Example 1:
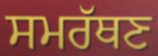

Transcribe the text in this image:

ਸਮਰੱਥਣ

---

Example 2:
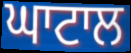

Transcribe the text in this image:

ਘਾਟਾਲ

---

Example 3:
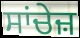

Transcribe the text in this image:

ਸਾਂਚੇਜ਼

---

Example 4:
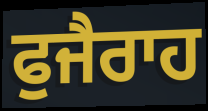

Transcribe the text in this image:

ਫੁਜੈਰਾਹ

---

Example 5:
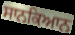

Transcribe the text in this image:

ਸਾਨਕਿਆਨ